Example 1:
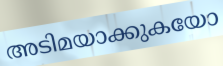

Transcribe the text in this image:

അടിമയാക്കുകയോ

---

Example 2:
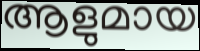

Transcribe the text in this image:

ആളുമായ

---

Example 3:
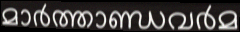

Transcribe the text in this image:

മാർത്താണ്ഡവർമ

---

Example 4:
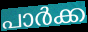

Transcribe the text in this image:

പാർക്ക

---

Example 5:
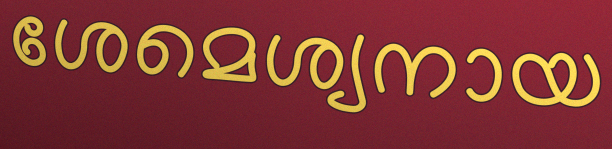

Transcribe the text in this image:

ശേമെശ്യനായ